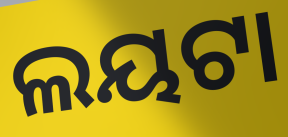
ଲୟଟା